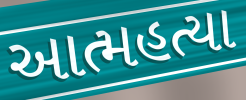
આત્મહત્યા